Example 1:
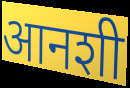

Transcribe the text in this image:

आनशी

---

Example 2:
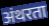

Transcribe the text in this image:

अंथरता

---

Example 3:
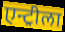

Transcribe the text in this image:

एन्ट्रीला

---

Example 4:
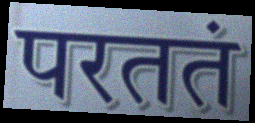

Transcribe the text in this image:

परततं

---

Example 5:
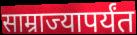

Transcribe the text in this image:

साम्राज्यापर्यंत